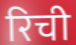
रिची